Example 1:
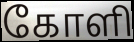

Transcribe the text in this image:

கோளி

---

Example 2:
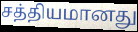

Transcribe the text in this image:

சத்தியமானது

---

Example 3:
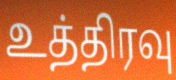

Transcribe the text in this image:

உத்திரவு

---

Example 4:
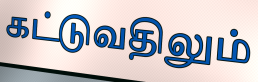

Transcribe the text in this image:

கட்டுவதிலும்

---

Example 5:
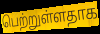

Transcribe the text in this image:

பெற்றுள்ளதாக